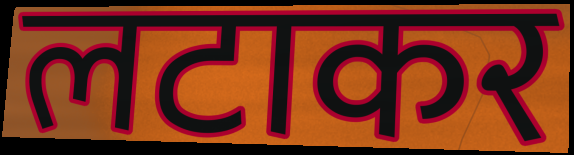
लटाकर